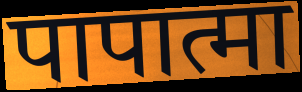
पापात्मा